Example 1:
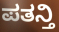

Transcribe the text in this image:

ಪತನ್ತಿ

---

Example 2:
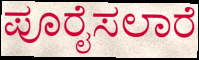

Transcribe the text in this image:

ಪೂರೈಸಲಾರೆ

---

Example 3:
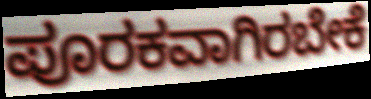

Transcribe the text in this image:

ಪೂರಕವಾಗಿರಬೇಕೆ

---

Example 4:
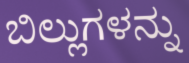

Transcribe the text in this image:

ಬಿಲ್ಲುಗಳನ್ನು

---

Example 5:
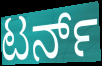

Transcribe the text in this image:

ಟರ್ನ್